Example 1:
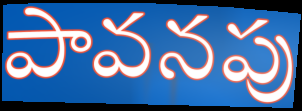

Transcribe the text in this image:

పావనపు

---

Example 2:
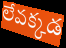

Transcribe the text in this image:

లేవక్కడ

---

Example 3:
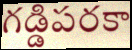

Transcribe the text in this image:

గడ్డిపరకా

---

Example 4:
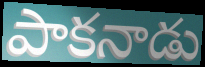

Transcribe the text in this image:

పాకనాడు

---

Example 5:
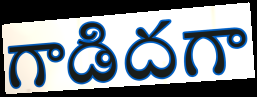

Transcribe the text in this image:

గాడిదగా